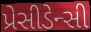
પ્રેસીડેન્સી